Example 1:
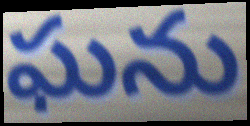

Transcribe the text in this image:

ఘను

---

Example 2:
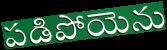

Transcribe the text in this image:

పడిపోయెను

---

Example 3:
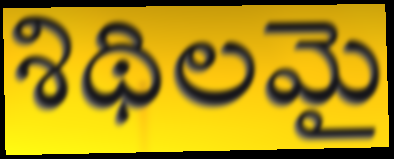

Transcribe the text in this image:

శిథిలమై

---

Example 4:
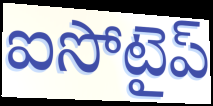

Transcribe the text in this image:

ఐసోటైప్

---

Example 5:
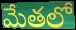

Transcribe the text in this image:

మేతలో